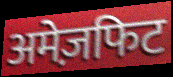
अमेज़फिट